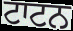
ਟਾਟਨ